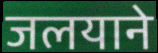
जलयाने